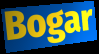
Bogar